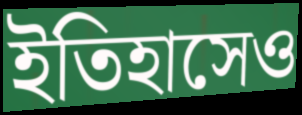
ইতিহাসেও